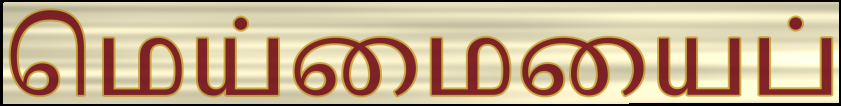
மெய்மையைப்